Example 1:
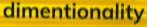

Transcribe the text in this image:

dimentionality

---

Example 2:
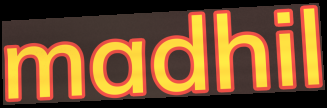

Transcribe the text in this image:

madhil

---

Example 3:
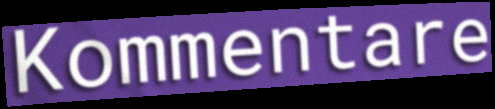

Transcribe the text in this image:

Kommentare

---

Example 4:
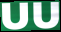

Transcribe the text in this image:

UU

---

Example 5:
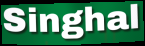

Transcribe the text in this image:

Singhal